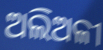
ଅଲିଅଳୀ